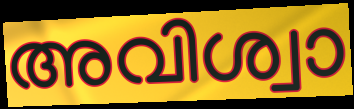
അവിശ്വാ